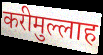
करीमुल्लाह